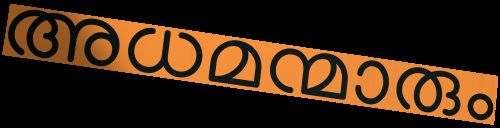
അധമന്മാരും